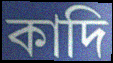
কাদি